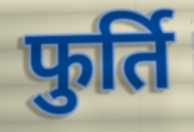
फुर्ति